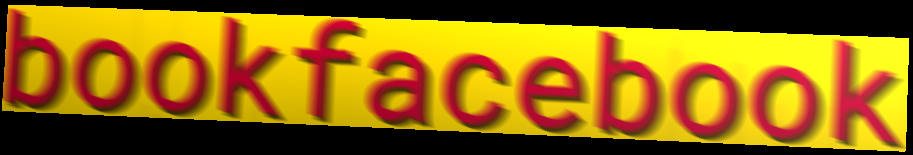
bookfacebook